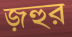
জ়হুর